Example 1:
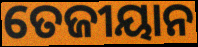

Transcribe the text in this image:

ତେଜୀୟାନ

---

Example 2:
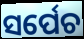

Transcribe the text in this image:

ସର୍ପେଚ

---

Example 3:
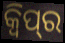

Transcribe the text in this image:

କ୍ଵିପ୍‌ର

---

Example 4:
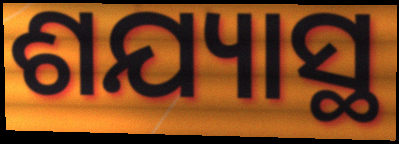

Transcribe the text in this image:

ଶଯ୍ୟାସ୍ଥ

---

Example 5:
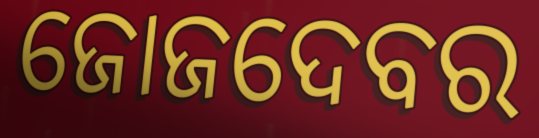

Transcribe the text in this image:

ଜୋଜଦେବର